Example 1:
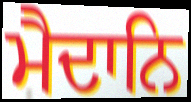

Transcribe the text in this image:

ਮੈਦਾਨਿ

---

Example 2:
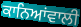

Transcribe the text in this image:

ਕਾਨਿਆਂਵਾਲੀ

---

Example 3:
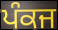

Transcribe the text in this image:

ਪੰਕਜ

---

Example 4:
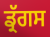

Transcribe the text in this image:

ਡ੍ਰੱਗਸ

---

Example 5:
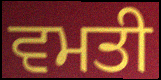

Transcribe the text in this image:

ਵਮਤੀ